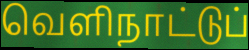
வெளிநாட்டுப்